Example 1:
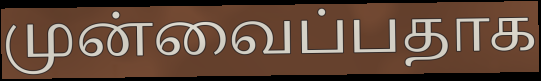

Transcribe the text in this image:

முன்வைப்பதாக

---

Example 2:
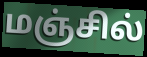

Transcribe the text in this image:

மஞ்சில்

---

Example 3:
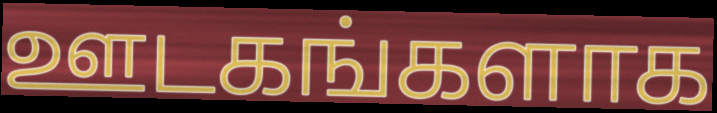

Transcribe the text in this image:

ஊடகங்களாக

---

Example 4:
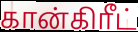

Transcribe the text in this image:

கான்கிரீட்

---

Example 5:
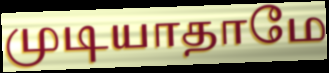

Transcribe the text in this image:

முடியாதாமே